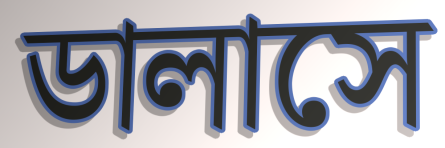
ডালাসে